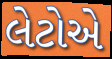
લેટોએ